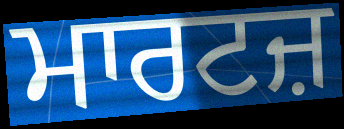
ਮਾਰਟਜ਼